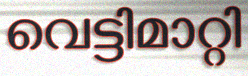
വെട്ടിമാറ്റി